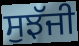
ਸੁਝੱਜੀ